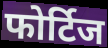
फोर्टिज